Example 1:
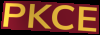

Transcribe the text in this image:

PKCE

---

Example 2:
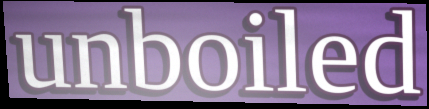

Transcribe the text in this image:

unboiled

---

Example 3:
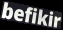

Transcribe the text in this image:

befikir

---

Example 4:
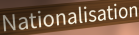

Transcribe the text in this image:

Nationalisation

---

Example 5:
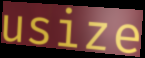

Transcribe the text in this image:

usize